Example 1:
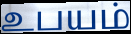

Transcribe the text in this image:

உபயம்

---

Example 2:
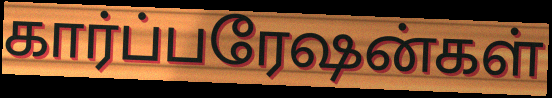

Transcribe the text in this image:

கார்ப்பரேஷன்கள்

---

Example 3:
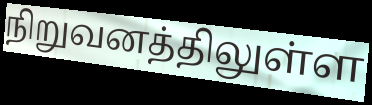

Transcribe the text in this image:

நிறுவனத்திலுள்ள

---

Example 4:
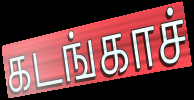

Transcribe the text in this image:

கடங்காச்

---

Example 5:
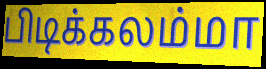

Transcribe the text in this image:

பிடிக்கலம்மா